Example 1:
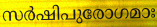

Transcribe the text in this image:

സർഷിപുരോഗമാഃ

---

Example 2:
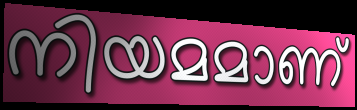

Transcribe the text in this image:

നിയമമാണ്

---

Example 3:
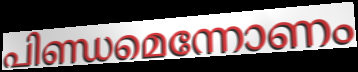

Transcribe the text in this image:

പിണ്ഡമെന്നോണം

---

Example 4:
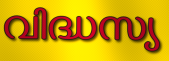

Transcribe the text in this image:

വിദ്ധസ്യ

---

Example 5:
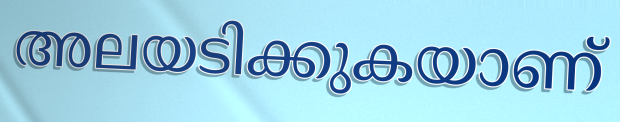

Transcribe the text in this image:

അലയടിക്കുകയാണ്